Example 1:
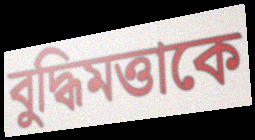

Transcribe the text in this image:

বুদ্ধিমত্তাকে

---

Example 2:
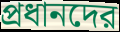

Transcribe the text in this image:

প্রধানদের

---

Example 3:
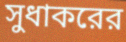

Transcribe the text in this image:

সুধাকরের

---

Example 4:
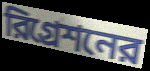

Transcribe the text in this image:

রিগ্রেশনের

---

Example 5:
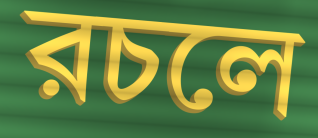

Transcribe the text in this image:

রচলে